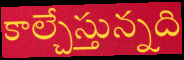
కాల్చేస్తున్నది